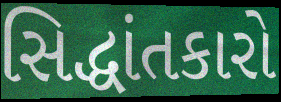
સિદ્ધાંતકારો